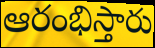
ఆరంభిస్తారు